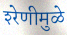
श्रेणीमुळे